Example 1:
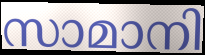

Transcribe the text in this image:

സാമാനി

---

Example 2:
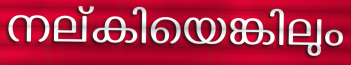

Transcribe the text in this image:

നല്‌കിയെങ്കിലും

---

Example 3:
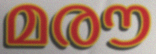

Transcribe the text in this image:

മരൗ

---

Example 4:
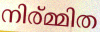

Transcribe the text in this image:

നിര്മ്മിത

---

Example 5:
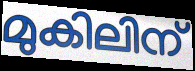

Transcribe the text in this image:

മുകിലിന്